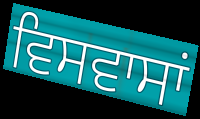
ਵਿਸਵਾਸਾਂ